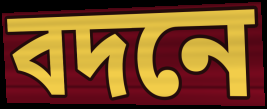
বদনে